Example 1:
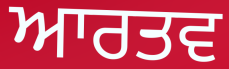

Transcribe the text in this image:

ਆਰਤਵ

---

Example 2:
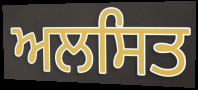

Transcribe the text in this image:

ਅਲਸਿਤ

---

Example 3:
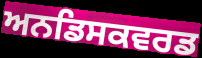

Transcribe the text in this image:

ਅਨਡਿਸਕਵਰਡ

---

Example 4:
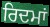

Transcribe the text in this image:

ਰਿਦਮਾਂ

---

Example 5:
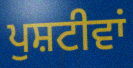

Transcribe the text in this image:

ਪੁਸ਼ਟੀਵਾਂ